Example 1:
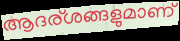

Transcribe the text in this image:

ആദര്ശങ്ങളുമാണ്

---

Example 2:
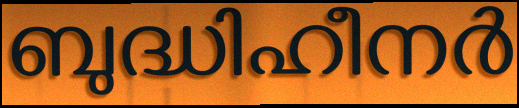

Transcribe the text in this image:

ബുദ്ധിഹീനർ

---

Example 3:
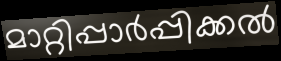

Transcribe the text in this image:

മാറ്റിപ്പാർപ്പിക്കൽ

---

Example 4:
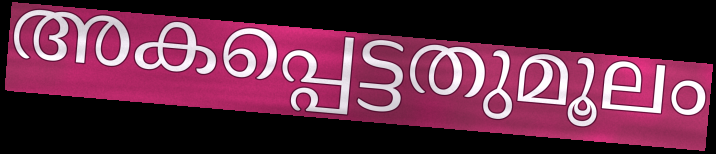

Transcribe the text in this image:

അകപ്പെട്ടതുമൂലം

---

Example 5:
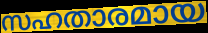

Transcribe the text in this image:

സഹതാരമായ